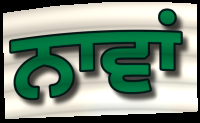
ਨਾਵਾਂ